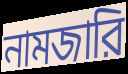
নামজারি